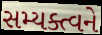
સમ્યક્ત્વને